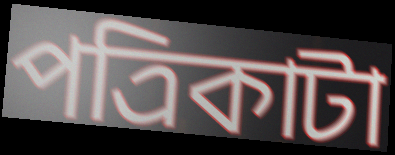
পত্রিকাটা